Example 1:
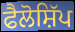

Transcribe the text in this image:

ਫੈਲੋਸ਼ਿੱਪ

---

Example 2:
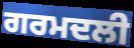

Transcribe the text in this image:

ਗਰਮਦਲੀ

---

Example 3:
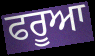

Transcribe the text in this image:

ਫਰੂਆ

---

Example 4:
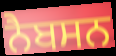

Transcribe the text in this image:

ਨੈਬਸਨ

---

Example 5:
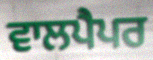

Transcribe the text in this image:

ਵਾਲਪੈਪਰ